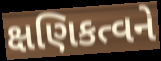
ક્ષણિકત્વને